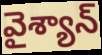
వైశ్యాన్